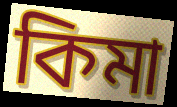
কিমা